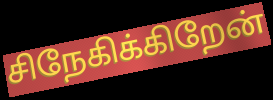
சிநேகிக்கிறேன்